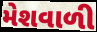
મેશવાળી